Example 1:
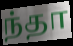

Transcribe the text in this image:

ந்தா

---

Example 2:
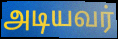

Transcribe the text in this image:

அடியவர்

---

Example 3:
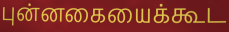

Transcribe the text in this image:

புன்னகையைக்கூட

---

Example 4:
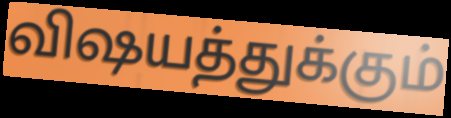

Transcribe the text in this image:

விஷயத்துக்கும்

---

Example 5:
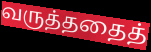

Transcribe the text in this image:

வருத்ததைத்